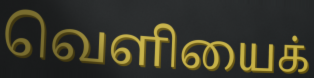
வெளியைக்